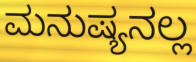
ಮನುಷ್ಯನಲ್ಲ